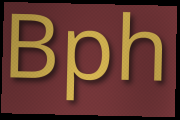
Bph